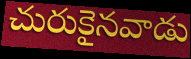
చురుకైనవాడు